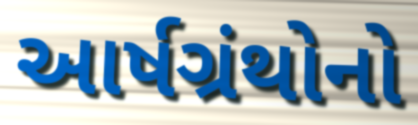
આર્ષગ્રંથોનો